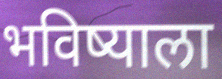
भविष्याला